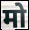
मो